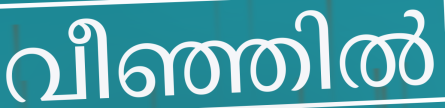
വീഞ്ഞിൽ